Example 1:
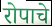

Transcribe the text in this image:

रोपाचे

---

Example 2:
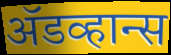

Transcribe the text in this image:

ॲडव्हान्स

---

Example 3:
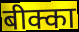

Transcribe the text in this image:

बीक्का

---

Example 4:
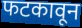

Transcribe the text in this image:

फटकावून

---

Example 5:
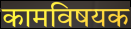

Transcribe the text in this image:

कामविषयक